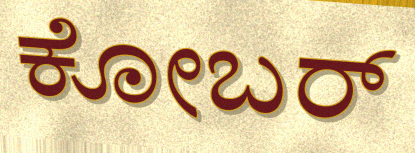
ಕೋಬರ್